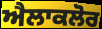
ਐਲਾਕਲੋਰ